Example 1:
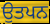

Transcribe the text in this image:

ਉਤਪਨ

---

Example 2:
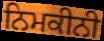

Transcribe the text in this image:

ਨਿਮਕੀਨੀ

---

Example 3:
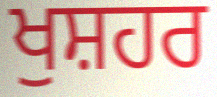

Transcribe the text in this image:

ਖੁਸ਼ਹਰ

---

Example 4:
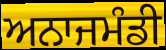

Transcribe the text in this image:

ਅਨਾਜਮੰਡੀ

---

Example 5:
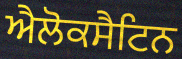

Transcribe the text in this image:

ਐਲੋਕਸੈਟਿਨ